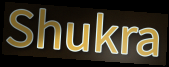
Shukra